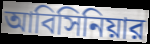
আবিসিনিয়ার